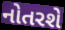
નોતરશે